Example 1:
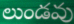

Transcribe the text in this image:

లుండవు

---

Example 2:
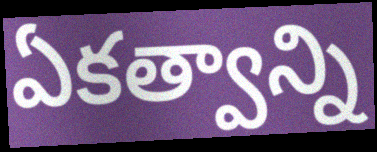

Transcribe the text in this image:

ఏకత్వాన్ని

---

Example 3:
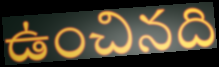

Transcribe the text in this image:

ఉంచినది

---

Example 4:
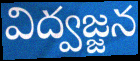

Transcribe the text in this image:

విద్వజ్జన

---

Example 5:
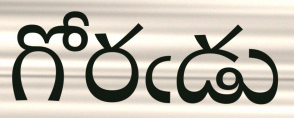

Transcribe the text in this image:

గోరఁడు